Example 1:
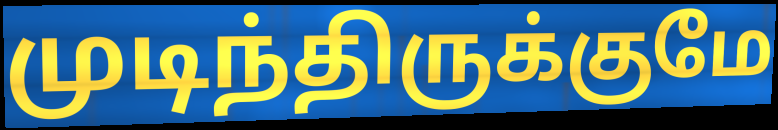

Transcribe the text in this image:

முடிந்திருக்குமே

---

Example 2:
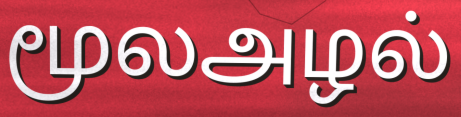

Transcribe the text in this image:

மூலஅழல்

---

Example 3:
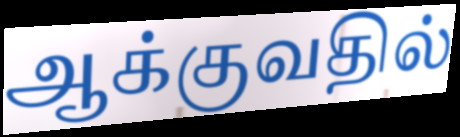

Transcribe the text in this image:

ஆக்குவதில்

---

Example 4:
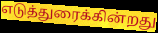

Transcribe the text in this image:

எடுத்துரைக்கின்றது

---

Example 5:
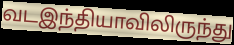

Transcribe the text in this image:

வடஇந்தியாவிலிருந்து